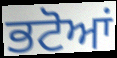
ਭਟੋਆਂ